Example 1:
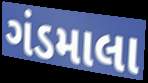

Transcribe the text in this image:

ગંડમાલા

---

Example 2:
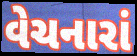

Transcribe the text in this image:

વેચનારાં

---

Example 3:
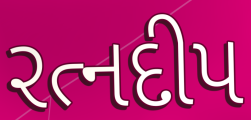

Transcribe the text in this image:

રત્નદીપ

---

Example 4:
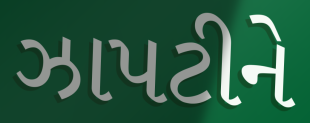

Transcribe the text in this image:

ઝાપટીને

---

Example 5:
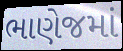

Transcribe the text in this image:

ભાણેજમાં